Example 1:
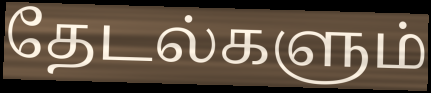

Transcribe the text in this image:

தேடல்களும்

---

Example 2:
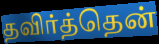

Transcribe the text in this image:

தவிர்த்தென்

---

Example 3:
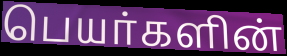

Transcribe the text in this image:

பெயர்களின்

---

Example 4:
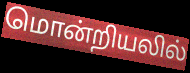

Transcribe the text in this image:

மொன்றியலில்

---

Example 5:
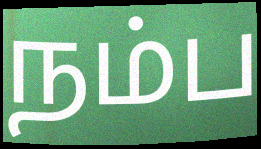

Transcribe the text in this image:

நம்ப